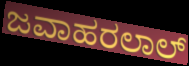
ಜವಾಹರಲಾಲ್